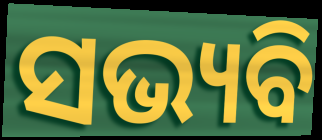
ସଭ୍ୟବି